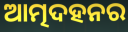
ଆତ୍ମଦହନର